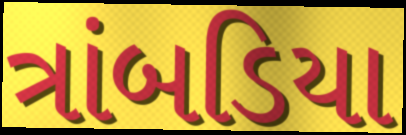
ત્રાંબડિયા